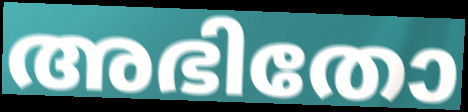
അഭിതോ